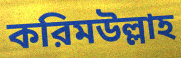
করিমউল্লাহ